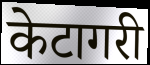
केटागरी